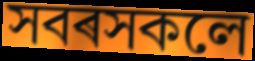
সবৰসকলে